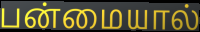
பன்மையால்